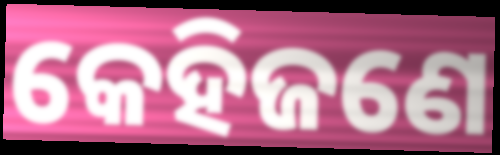
କେହିଜଣେ